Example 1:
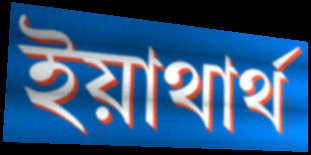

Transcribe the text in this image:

ইয়াথার্থ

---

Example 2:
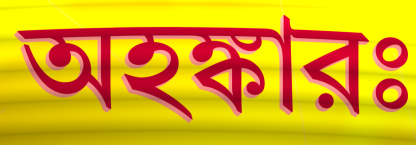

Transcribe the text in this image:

অহঙ্কারঃ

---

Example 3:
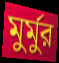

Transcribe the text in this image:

মুর্মুর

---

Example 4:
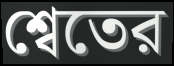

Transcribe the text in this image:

শ্বেতের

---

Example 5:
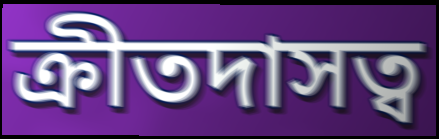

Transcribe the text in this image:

ক্রীতদাসত্ব